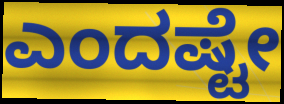
ಎಂದಷ್ಟೇ